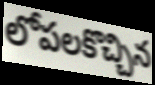
లోపలకొచ్చిన